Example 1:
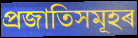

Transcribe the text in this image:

প্ৰজাতিসমূহৰ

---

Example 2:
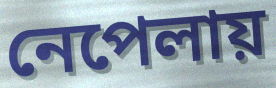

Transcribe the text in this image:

নেপেলায়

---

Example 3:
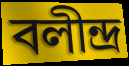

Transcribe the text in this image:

বলীন্দ্ৰ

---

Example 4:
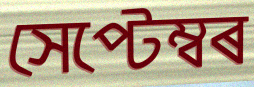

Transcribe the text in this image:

সেপ্টেম্বৰ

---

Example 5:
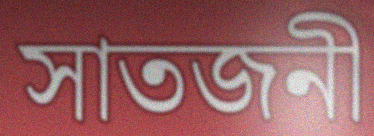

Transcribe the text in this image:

সাতজনী